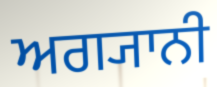
ਅਗ੍ਯਾਨੀ